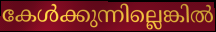
കേൾക്കുന്നില്ലെങ്കിൽ